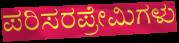
ಪರಿಸರಪ್ರೇಮಿಗಳು